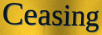
Ceasing